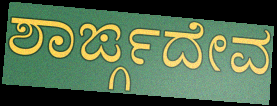
ಶಾರ್ಙ್ಗದೇವ